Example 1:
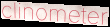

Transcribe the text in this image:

clinometer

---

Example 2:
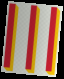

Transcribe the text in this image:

Ill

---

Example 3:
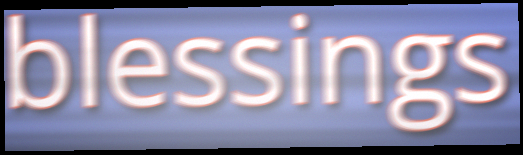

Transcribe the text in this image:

blessings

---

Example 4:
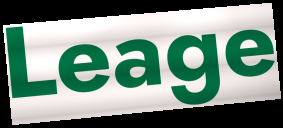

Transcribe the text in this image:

Leage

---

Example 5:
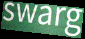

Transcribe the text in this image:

swarg